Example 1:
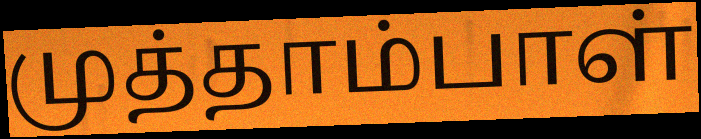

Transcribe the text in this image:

முத்தாம்பாள்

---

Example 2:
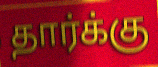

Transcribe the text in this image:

தார்க்கு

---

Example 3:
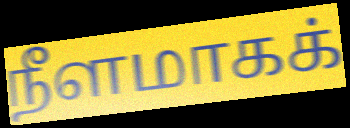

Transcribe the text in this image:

நீளமாகக்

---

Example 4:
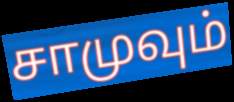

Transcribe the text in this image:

சாமுவும்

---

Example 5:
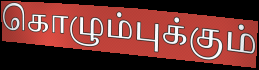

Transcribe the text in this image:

கொழும்புக்கும்